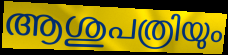
ആശുപത്രിയും